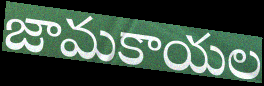
జామకాయల